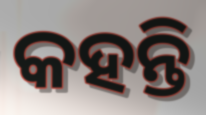
କହନ୍ତି